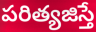
పరిత్యజిస్తే